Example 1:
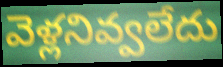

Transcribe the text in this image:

వెళ్లనివ్వలేదు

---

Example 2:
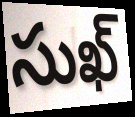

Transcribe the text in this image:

సుఖ్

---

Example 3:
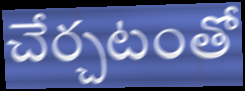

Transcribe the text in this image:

చేర్చటంతో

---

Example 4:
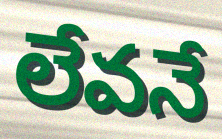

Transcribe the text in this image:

లేవనే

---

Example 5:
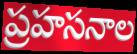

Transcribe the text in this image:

ప్రహసనాల